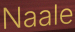
Naale